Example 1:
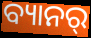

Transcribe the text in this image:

ବ୍ୟାନର୍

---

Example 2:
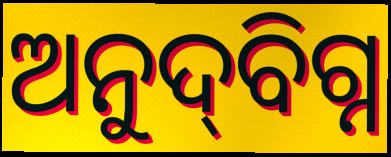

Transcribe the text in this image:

ଅନୁଦ୍‌ବିଗ୍ନ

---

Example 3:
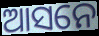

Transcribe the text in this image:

ଆସନେ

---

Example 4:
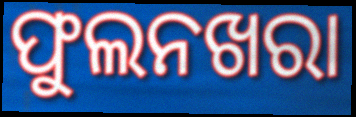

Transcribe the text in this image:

ଫୁଲନଖରା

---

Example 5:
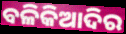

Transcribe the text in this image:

ବଳିକିଆଦିର